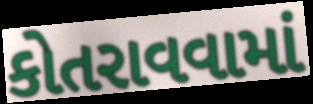
કોતરાવવામાં